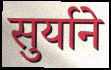
सुर्याने